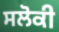
ਸਲੋਕੀ